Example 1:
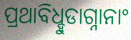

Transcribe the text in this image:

ପ୍ରଥାବିଧ୍ହୁଡାଗ୍ନାନାଂ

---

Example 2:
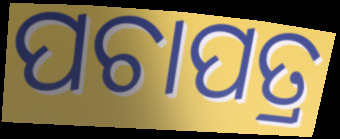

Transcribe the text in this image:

ପଚାପତ୍ର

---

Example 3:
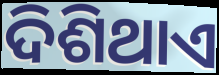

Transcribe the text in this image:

ଦିଶିଥାଏ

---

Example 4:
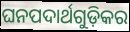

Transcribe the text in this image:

ଘନପଦାର୍ଥଗୁଡ଼ିକର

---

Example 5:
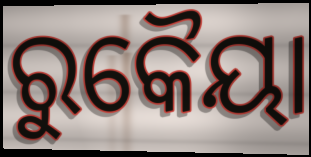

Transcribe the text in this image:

ରୁକୈୟା